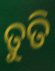
ତୁତି